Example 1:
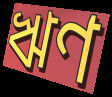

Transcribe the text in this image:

ঋণ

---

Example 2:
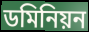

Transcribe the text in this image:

ডমিনিয়ন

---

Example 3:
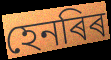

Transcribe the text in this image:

হেনৰিৰ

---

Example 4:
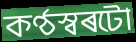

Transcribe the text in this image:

কণ্ঠস্বৰটো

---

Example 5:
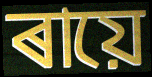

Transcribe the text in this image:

ৰায়ে